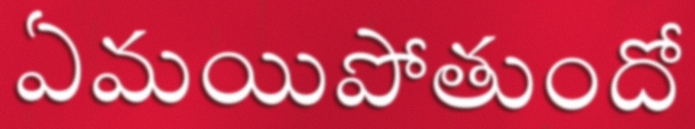
ఏమయిపోతుందో